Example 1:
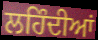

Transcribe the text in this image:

ਲਹਿੰਦੀਆਂ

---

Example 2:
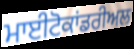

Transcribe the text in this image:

ਮਾਈਟੋਕਾਂਡਰੀਅਲ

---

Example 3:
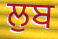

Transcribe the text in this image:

ਲੁਬ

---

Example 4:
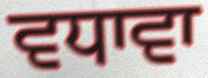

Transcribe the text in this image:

ਵਧਾਵਾ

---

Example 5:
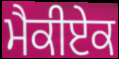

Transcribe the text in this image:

ਮੈਕੀਏਕ